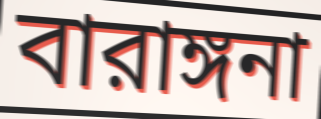
বারাঙ্গনা